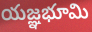
యజ్ఞభూమి